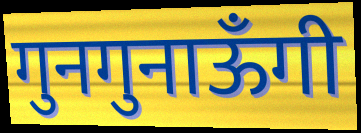
गुनगुनाऊँगी